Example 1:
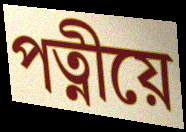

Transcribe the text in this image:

পত্নীয়ে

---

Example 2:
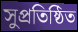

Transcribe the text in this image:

সুপ্ৰতিষ্ঠিত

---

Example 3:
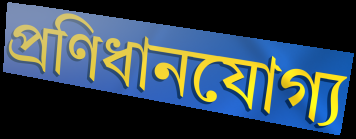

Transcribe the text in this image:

প্ৰণিধানযোগ্য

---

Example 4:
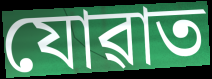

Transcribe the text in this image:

যোৱাত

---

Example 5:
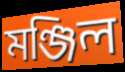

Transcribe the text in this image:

মঞ্জিল